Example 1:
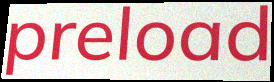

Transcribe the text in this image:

preload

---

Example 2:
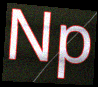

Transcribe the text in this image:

Np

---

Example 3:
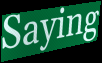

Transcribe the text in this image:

Saying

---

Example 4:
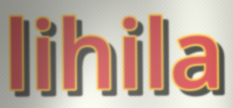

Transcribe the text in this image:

lihila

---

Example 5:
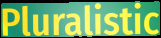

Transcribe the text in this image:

Pluralistic